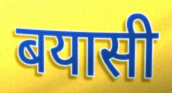
बयासी